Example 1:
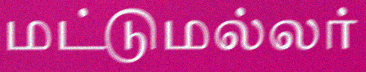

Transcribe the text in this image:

மட்டுமல்லர்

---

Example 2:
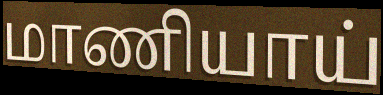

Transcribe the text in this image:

மாணியாய்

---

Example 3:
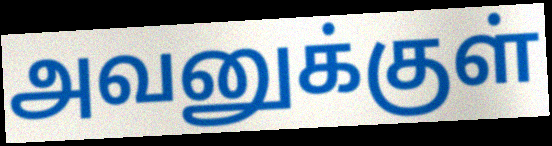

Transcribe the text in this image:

அவனுக்குள்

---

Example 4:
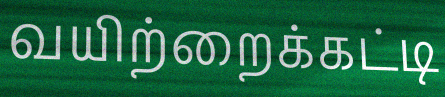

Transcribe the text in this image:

வயிற்றைக்கட்டி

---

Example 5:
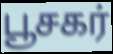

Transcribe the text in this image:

பூசகர்